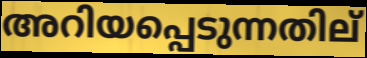
അറിയപ്പെടുന്നതില്